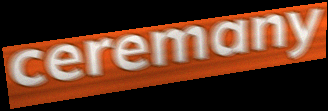
ceremany